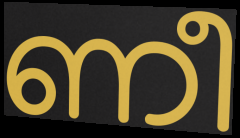
ണീ